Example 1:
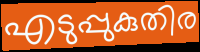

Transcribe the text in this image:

എടുപ്പുകുതിര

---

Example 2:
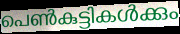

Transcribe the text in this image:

പെൺകുട്ടികൾക്കും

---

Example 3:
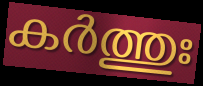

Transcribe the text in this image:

കർത്തുഃ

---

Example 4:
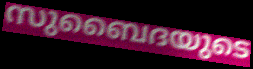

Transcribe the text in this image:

സുബൈദയുടെ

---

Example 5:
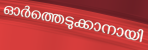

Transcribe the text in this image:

ഓർത്തെടുക്കാനായി